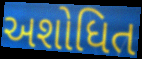
અશોધિત